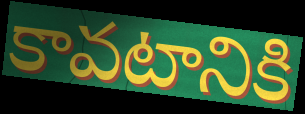
కావటానికి